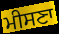
ਮੀਸਣਾ